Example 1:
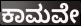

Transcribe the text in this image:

ಕಾಮವೇ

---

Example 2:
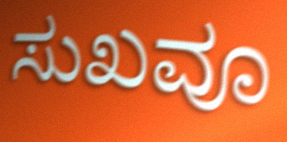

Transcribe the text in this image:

ಸುಖವೂ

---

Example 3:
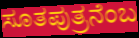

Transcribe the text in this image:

ಸೂತಪುತ್ರನೆಂಬ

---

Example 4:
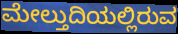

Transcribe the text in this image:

ಮೇಲ್ತುದಿಯಲ್ಲಿರುವ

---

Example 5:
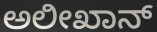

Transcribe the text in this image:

ಅಲೀಖಾನ್